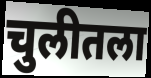
चुलीतला